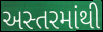
અસ્તરમાંથી